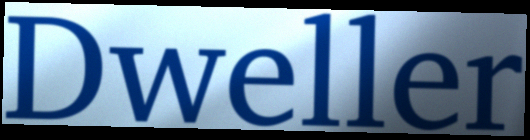
Dweller